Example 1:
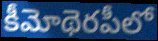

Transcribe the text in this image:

కీమోథెరపీలో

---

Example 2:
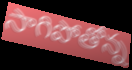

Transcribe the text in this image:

సాగిపోతోన్న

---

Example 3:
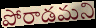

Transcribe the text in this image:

పోరాడమని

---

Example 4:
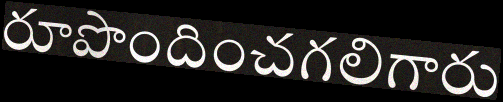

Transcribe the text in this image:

రూపొందించగలిగారు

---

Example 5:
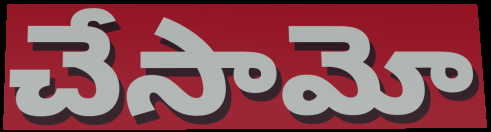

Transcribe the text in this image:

చేసామో